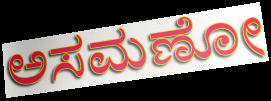
ಅಸಮಣೋ